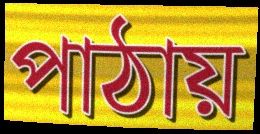
পাঠায়